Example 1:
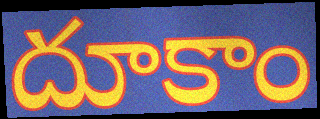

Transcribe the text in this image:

దూకాం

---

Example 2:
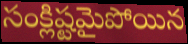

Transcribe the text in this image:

సంక్లిష్టమైపోయిన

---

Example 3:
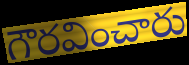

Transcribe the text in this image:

గౌరవించారు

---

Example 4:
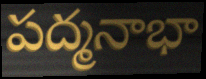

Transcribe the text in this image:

పద్మనాభా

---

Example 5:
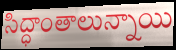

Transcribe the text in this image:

సిద్ధాంతాలున్నాయి